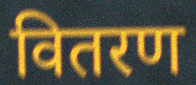
वितरण